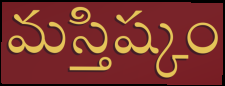
మస్తిష్కం